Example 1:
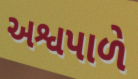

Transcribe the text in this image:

અશ્વપાળે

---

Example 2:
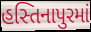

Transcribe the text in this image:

હસ્તિનાપુરમાં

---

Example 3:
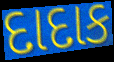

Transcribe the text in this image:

દાદાક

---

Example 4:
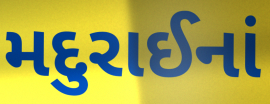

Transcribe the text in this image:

મદુરાઈનાં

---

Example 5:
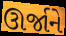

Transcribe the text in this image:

ઊર્જાને